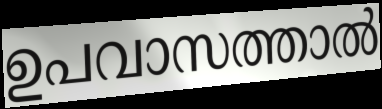
ഉപവാസത്താൽ